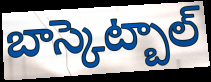
బాస్కెట్బాల్